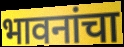
भावनांचा